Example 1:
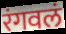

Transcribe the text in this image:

रंगवलं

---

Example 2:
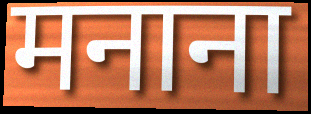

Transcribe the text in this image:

मनाना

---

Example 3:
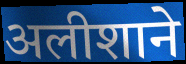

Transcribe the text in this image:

अलीशाने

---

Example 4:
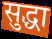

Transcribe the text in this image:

सुद्धा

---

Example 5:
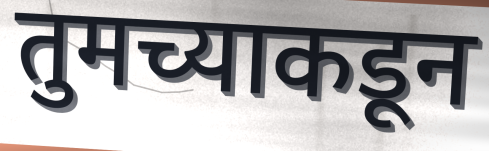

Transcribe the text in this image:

तुमच्याकडून